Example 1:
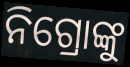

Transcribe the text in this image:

ନିଗ୍ରୋଙ୍କୁ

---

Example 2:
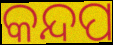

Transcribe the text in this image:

କନ୍ଦପ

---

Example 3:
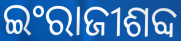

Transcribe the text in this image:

ଇଂରାଜୀଶବ୍ଦ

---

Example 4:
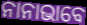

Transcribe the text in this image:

ନାନାଭାବେ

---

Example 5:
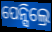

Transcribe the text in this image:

ପେନ୍ସିଲ୍ରେ